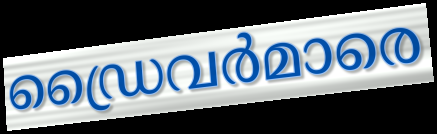
ഡ്രൈവർമാരെ